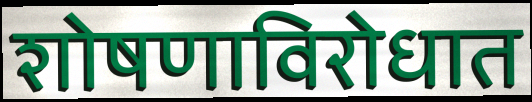
शोषणाविरोधात